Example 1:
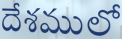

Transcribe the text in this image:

దేశములో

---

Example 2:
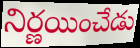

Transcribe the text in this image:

నిర్ణయించేడు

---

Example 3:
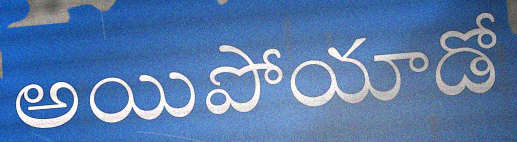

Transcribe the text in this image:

అయిపోయాడో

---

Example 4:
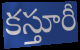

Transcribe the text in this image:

కస్తూరీ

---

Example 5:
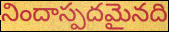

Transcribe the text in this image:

నిందాస్పదమైనది